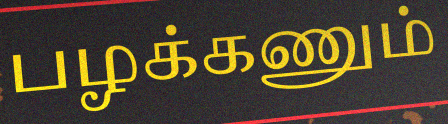
பழக்கணும்